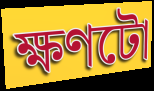
ক্ষণটো